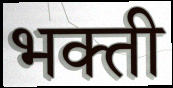
भक्ती